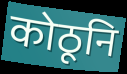
कोठूनि